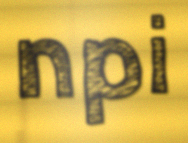
npi